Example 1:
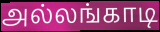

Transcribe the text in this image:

அல்லங்காடி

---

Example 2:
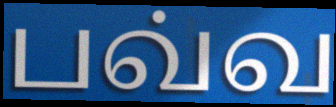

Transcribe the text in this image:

பவ்வ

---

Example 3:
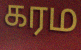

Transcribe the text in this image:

கரம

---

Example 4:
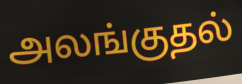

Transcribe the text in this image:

அலங்குதல்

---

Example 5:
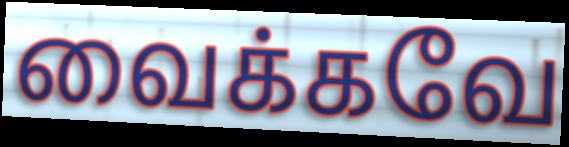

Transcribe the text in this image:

வைக்கவே